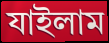
যাইলাম